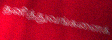
தனித்துவங்களைக்